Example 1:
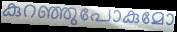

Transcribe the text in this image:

കുറഞ്ഞുപോകുമോ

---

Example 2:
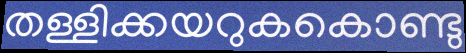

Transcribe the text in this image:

തള്ളിക്കയറുകകൊണ്ടു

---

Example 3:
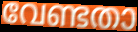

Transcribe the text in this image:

വേണ്ടതാ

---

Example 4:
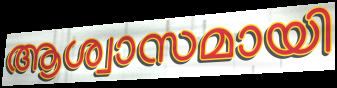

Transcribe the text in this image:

ആശ്വാസമായി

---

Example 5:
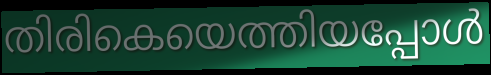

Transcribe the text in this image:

തിരികെയെത്തിയപ്പോൾ